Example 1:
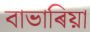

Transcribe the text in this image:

বাভাৰিয়া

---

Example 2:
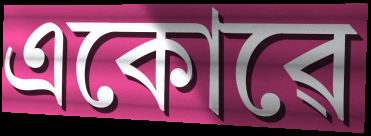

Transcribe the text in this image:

একোৱে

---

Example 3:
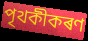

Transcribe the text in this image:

পৃথকীকৰণ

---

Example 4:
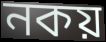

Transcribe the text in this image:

নকয়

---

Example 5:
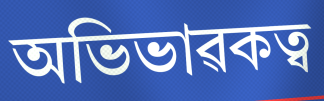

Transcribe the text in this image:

অভিভাৱকত্ব